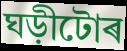
ঘড়ীটোৰ